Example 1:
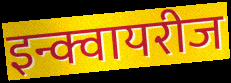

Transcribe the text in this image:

इन्क्वायरीज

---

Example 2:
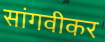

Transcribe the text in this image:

सांगवीकर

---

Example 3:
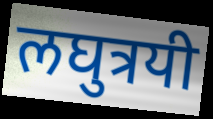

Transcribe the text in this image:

लघुत्रयी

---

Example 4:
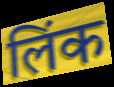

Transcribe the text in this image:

लिंक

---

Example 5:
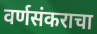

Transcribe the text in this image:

वर्णसंकराचा